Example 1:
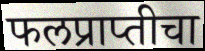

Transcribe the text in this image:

फलप्राप्तीचा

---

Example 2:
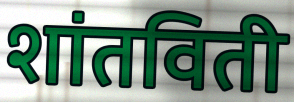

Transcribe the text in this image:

शांतविती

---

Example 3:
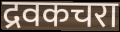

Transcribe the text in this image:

द्रवकचरा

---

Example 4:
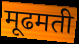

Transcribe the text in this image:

मूढमती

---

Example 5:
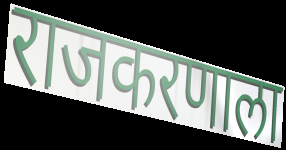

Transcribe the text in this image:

राजकरणाला